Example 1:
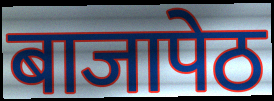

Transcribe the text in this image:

बाजापेठ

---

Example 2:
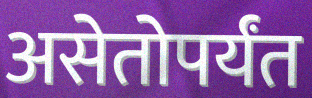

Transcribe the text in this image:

असेतोपर्यंत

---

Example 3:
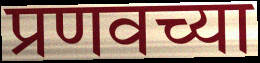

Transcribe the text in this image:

प्रणवच्या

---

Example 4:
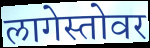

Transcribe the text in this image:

लागेस्तोवर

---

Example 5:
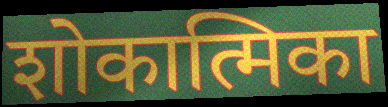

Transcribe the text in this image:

शोकात्मिका